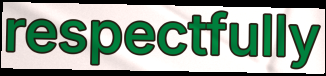
respectfully